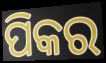
ପିକର